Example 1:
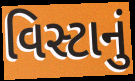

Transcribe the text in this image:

વિસ્ટાનું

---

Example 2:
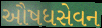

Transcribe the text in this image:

ઔષધસેવન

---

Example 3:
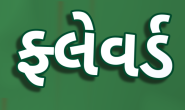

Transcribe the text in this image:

ફ્લેવર્ડ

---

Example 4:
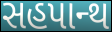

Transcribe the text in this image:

સહપાન્થ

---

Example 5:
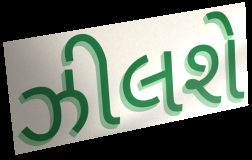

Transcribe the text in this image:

ઝીલશે